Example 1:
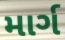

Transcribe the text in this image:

માર્ગ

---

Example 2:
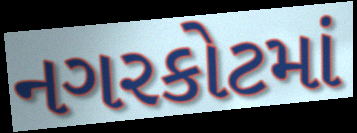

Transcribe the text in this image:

નગરકોટમાં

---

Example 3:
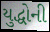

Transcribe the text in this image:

યુદ્ધોની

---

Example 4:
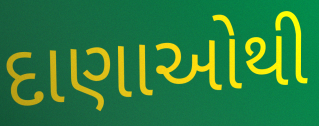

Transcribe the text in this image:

દાણાઓથી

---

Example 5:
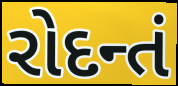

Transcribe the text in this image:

રોદન્તં